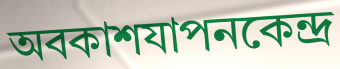
অবকাশযাপনকেন্দ্র